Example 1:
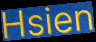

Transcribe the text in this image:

Hsien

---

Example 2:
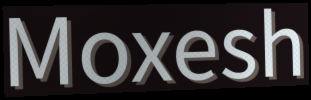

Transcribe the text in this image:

Moxesh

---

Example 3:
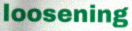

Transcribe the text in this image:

loosening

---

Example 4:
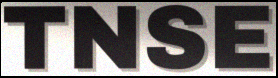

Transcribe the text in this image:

TNSE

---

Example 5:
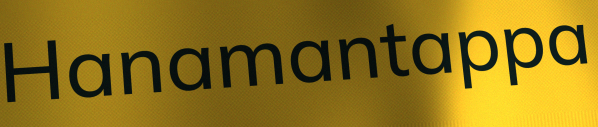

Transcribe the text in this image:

Hanamantappa